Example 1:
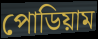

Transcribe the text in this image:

পোডিয়াম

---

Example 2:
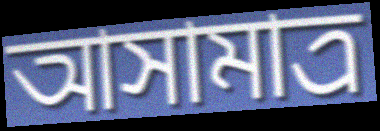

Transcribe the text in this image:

আসামাত্র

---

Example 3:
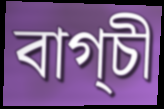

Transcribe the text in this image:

বাগ্চী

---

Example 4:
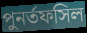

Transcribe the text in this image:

পুনর্তফসিল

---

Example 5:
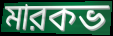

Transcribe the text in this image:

মারকভ